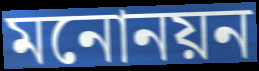
মনোনয়ন